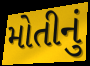
મોતીનું